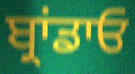
ਬ੍ਰਾਂਡਾਓ